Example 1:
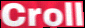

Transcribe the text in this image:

Croll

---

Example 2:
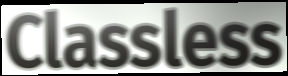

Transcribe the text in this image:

Classless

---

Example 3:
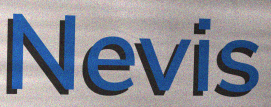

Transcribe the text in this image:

Nevis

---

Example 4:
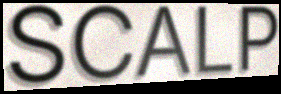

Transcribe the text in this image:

SCALP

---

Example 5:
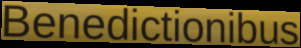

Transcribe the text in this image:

Benedictionibus